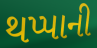
થપ્પાની